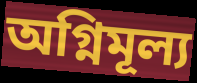
অগ্নিমূল্য